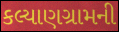
કલ્યાણગ્રામની